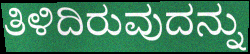
ತಿಳಿದಿರುವುದನ್ನು